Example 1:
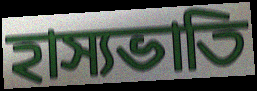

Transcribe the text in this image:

হাস্যভাতি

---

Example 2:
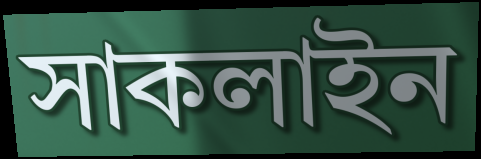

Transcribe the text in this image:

সাকলাইন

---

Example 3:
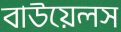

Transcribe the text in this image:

বাউয়েলস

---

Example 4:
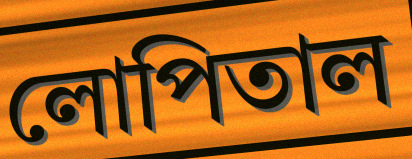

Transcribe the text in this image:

লোপিতাল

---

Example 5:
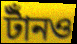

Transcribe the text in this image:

টাঁনও